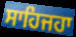
ਸਾਹਿਜਹਾ